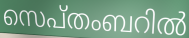
സെപ്തംബറിൽ